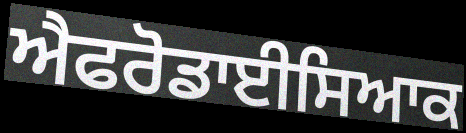
ਐਫਰੋਡਾਈਸਿਆਕ